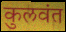
कुलवंत